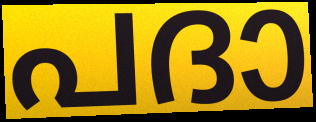
പദാ